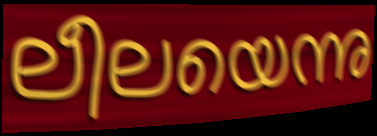
ലീലയെന്നു